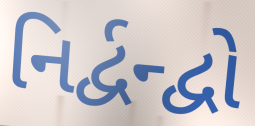
નિર્દ્વન્દ્વો